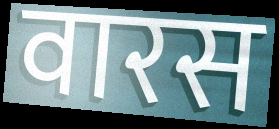
वारस